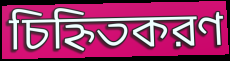
চিহ্নিতকরণ